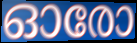
ഓരോ